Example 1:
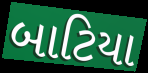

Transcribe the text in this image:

બાટિયા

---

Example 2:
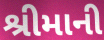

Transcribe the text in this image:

શ્રીમાની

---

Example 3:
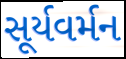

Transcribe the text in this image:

સૂર્યવર્મન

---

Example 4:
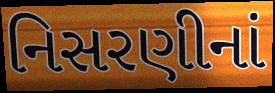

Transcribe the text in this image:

નિસરણીનાં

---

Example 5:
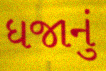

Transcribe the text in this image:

ધજાનું